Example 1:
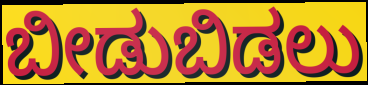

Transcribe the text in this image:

ಬೀಡುಬಿಡಲು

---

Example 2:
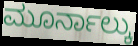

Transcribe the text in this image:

ಮೂರ್ನಾಲ್ಕು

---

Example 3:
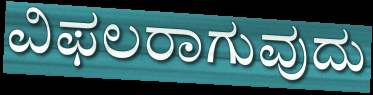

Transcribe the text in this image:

ವಿಫಲರಾಗುವುದು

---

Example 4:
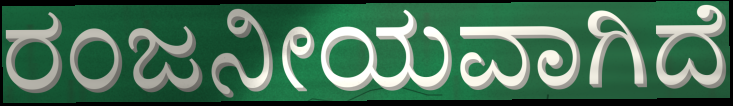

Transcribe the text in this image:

ರಂಜನೀಯವಾಗಿದೆ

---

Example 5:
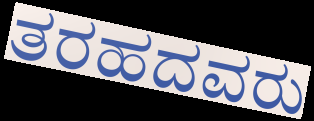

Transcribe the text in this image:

ತರಹದವರು